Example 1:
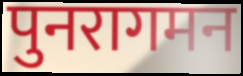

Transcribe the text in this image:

पुनरागमन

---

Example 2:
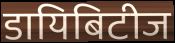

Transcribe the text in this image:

डायिबिटीज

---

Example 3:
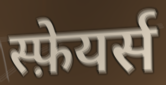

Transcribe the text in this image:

स्फ़ेयर्स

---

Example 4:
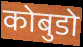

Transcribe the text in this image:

कोबुडो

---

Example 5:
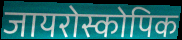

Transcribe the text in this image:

जायरोस्कोपिक